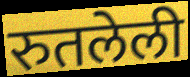
रुतलेली